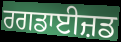
ਰਗਡਾਈਜ਼ਡ